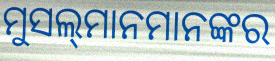
ମୁସଲ୍‌ମାନମାନଙ୍କର